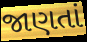
જાણતાં